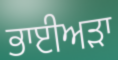
ਭਾਈਅੜਾ